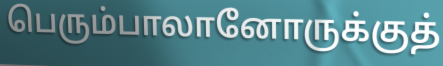
பெரும்பாலானோருக்குத்